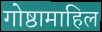
गोष्ठामाहिल